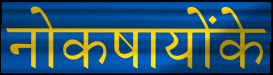
नोकषायोंके